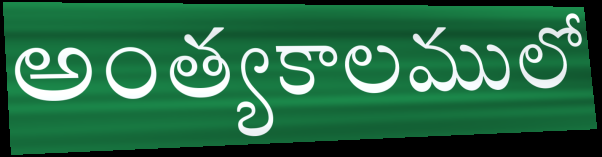
అంత్యకాలములో